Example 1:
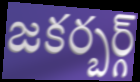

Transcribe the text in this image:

జకర్బర్గ్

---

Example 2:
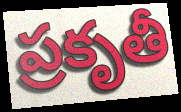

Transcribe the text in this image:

ప్రకృతీ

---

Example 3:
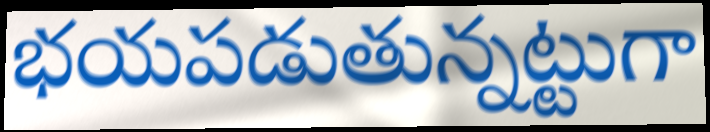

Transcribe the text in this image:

భయపడుతున్నట్టుగా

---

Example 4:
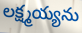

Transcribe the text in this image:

లక్ష్మయ్యను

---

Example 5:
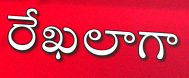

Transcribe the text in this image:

రేఖలాగా